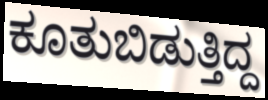
ಕೂತುಬಿಡುತ್ತಿದ್ದ